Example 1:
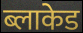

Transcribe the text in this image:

ब्लाकेड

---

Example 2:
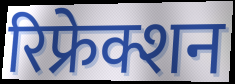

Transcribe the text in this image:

रिफ्रेक्शन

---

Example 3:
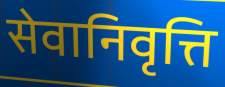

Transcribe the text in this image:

सेवानिवृत्ति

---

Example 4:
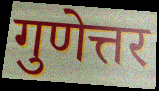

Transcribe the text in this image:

गुणेत्तर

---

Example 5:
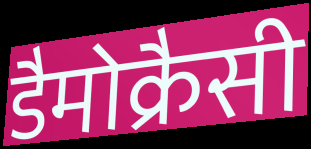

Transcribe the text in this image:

डैमोक्रैसी